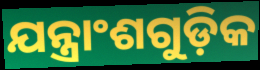
ଯନ୍ତ୍ରାଂଶଗୁଡ଼ିକ